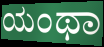
ಯಂಥಾ